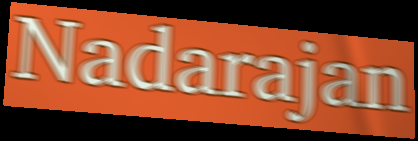
Nadarajan